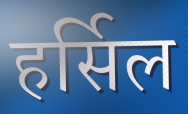
हर्सिल